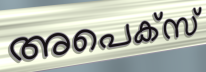
അപെക്സ്